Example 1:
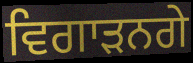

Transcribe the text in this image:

ਵਿਗਾੜਨਗੇ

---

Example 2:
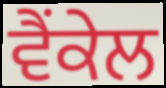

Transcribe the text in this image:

ਵੈਂਕੇਲ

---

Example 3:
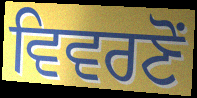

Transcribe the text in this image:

ਵਿਵਰਣੋਂ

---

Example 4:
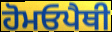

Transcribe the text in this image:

ਹੋਮਓਪੈਥੀ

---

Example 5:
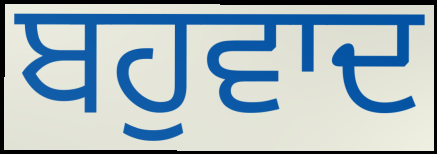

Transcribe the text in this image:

ਬਹੁਵਾਦ